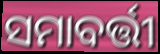
ସମାବର୍ତ୍ତୀ